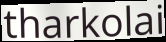
tharkolai